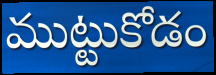
ముట్టుకోడం